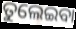
ତୁଲେଇବା